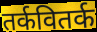
तर्कवितर्क